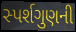
સ્પર્શગુણની